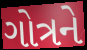
ગોત્રને